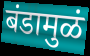
बंडामुळं